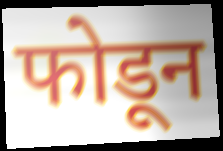
फोडून